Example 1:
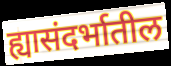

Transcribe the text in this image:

ह्यासंदर्भातील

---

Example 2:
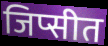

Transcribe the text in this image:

जिप्सीत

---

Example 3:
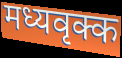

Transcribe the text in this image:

मध्यवृक्क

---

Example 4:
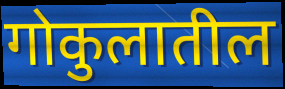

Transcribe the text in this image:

गोकुलातील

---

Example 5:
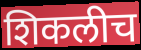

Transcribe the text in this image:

शिकलीच